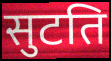
सुटति